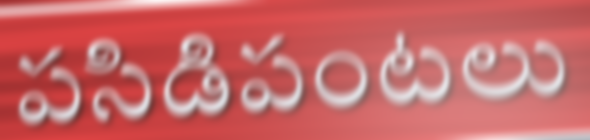
పసిడిపంటలు